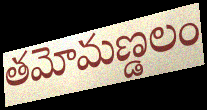
తమోమణ్డలం